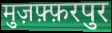
मुज़फ़्फ़रपुर